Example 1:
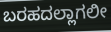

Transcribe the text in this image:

ಬರಹದಲ್ಲಾಗಲೀ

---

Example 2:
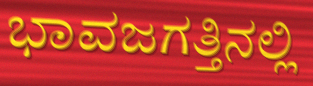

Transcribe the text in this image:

ಭಾವಜಗತ್ತಿನಲ್ಲಿ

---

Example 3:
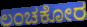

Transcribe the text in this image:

ಲಂಚಕೋರ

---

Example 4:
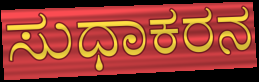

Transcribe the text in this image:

ಸುಧಾಕರನ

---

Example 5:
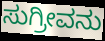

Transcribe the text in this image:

ಸುಗ್ರೀವನು